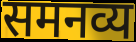
समनव्य